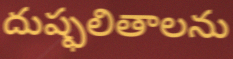
దుష్ఫలితాలను